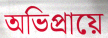
অভিপ্রায়ে